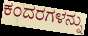
ಕಂದರಗಳನ್ನು